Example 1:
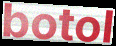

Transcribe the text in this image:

botol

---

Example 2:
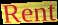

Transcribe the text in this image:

Rent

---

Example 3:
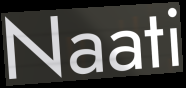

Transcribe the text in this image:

Naati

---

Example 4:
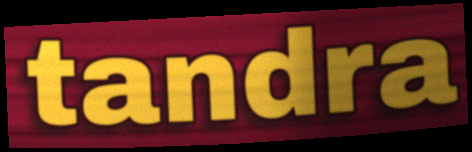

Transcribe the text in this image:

tandra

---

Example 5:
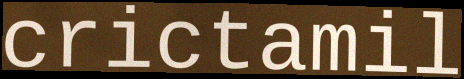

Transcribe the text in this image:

crictamil